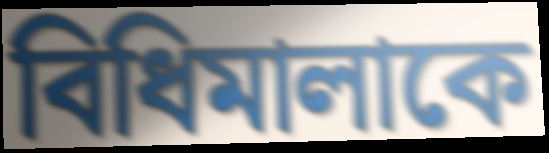
বিধিমালাকে